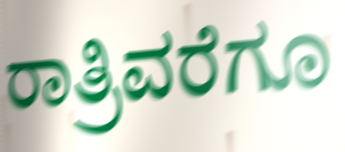
ರಾತ್ರಿವರೆಗೂ